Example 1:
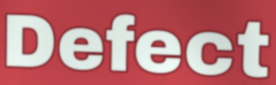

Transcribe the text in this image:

Defect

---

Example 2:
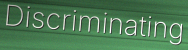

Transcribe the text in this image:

Discriminating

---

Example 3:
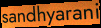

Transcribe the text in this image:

sandhyarani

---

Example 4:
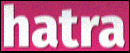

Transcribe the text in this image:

hatra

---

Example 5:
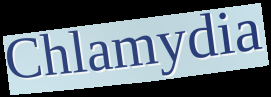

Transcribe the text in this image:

Chlamydia